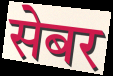
सेबर